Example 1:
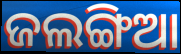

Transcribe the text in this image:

ଜଲଙ୍ଗିଆ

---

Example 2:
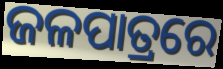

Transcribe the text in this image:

ଜଳପାତ୍ରରେ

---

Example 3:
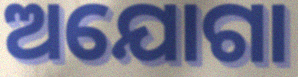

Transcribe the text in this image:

ଅଯୋଗା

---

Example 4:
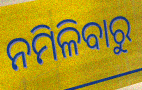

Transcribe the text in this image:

ନମିଳିବାରୁ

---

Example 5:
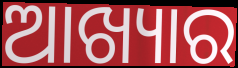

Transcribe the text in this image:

ଆଖ୍ୟାର